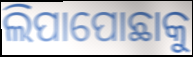
ଲିପାପୋଛାକୁ